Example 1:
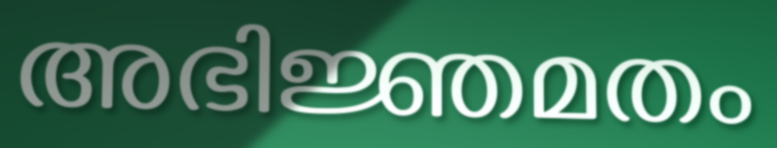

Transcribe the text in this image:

അഭിജ്ഞമതം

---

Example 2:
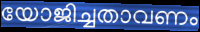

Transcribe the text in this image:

യോജിച്ചതാവണം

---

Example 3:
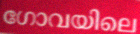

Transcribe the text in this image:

ഗോവയിലെ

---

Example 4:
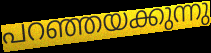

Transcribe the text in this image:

പറഞ്ഞയക്കുന്നു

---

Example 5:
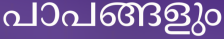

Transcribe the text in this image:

പാപങ്ങളും